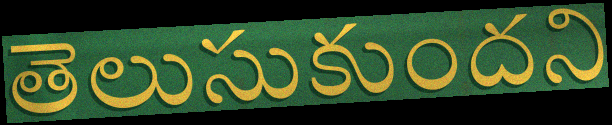
తెలుసుకుందని